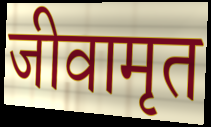
जीवामृत